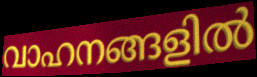
വാഹനങ്ങളിൽ